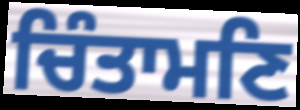
ਚਿੰਤਾਮਣਿ